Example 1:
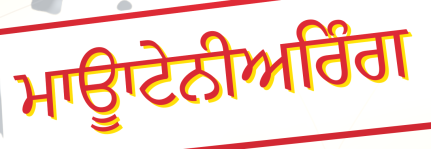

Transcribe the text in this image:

ਮਾਊਾਟੇਨੀਅਰਿੰਗ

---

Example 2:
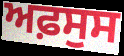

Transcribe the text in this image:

ਅਫ਼ਸੁਸ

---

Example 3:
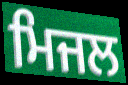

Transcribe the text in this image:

ਮਿਜਲ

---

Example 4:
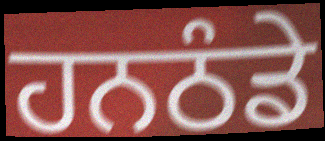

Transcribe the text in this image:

ਹਨਠੰਡੇ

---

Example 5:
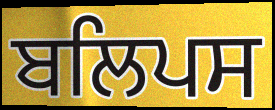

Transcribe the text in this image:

ਬਲਿਪਸ